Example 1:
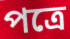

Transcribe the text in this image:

পত্রে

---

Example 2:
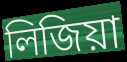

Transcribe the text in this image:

লিজিয়া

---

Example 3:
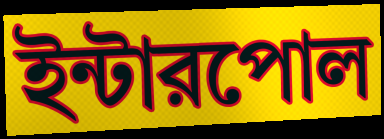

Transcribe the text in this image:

ইন্টারপোল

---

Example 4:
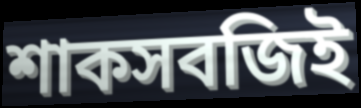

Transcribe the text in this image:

শাকসবজিই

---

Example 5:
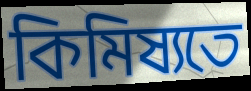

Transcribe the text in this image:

কিমিষ্যতে